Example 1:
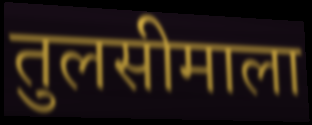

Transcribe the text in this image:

तुलसीमाला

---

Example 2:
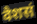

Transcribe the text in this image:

वैशसं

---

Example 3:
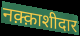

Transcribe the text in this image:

नक़्क़ाशीदार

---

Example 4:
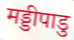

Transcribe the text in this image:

मड्डीपाडु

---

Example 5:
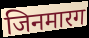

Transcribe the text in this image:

जिनमारग